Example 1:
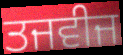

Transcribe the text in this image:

ਤਜਵੀਜ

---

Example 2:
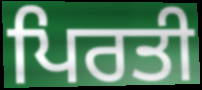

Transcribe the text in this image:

ਪਿਰਤੀ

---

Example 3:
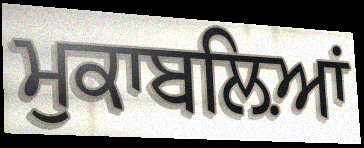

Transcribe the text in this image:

ਮੁਕਾਬਲ਼ਿਆਂ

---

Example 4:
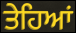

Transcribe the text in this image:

ਤੇਹਿਆਂ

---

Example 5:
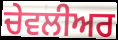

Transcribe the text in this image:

ਚੇਵਲੀਅਰ